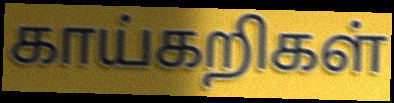
காய்கறிகள்